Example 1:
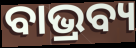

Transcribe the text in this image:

ବାଭ୍ରବ୍ୟ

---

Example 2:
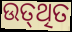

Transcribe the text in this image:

ଉତ୍‌ଥିତ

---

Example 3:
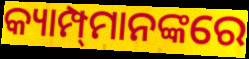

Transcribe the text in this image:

କ୍ୟାମ୍ପ୍‍ମାନଙ୍କରେ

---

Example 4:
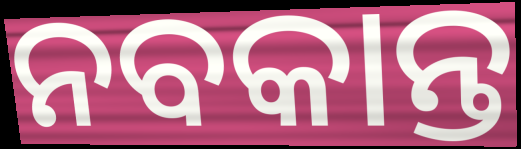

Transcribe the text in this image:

ନବକାନ୍ତ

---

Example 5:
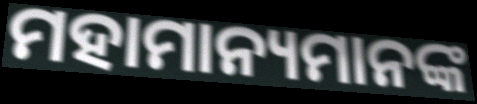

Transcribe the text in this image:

ମହାମାନ୍ୟମାନଙ୍କ